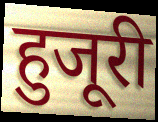
हुजूरी